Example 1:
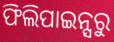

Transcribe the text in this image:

ଫିଲିପାଇନ୍ସରୁ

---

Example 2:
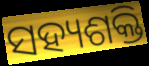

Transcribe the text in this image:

ସହ୍ୟଶକ୍ତି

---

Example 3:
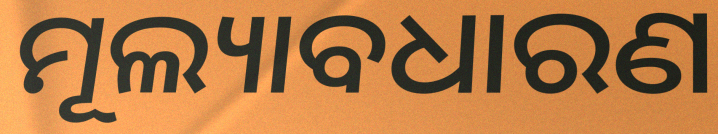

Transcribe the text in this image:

ମୂଲ୍ୟାବଧାରଣ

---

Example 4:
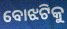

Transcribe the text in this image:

ବୋଝଟିକୁ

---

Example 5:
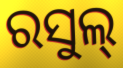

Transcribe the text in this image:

ରସୁଲ୍